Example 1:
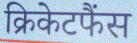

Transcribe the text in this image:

क्रिकेटफैंस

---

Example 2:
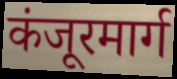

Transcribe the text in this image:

कंजूरमार्ग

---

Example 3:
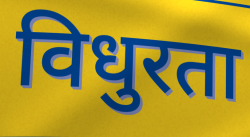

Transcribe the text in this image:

विधुरता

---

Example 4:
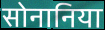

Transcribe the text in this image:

सोनानिया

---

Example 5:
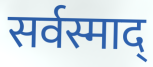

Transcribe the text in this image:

सर्वस्माद्